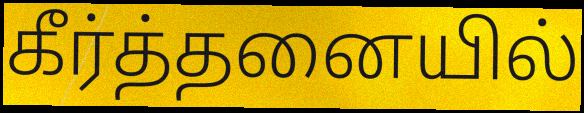
கீர்த்தனையில்